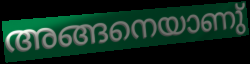
അങ്ങനെയാണു്